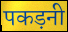
पकड़नी